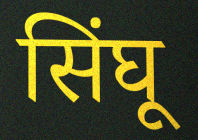
सिंघू